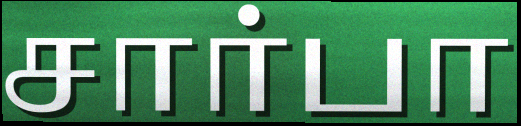
சார்பா